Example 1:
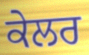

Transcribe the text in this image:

ਕੇਲਰ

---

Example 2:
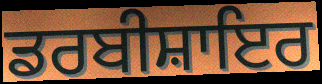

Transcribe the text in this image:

ਡਰਬੀਸ਼ਾਇਰ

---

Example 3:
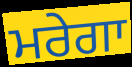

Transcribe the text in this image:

ਮਰੇਗਾ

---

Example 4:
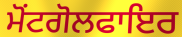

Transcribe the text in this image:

ਮੋਂਟਗੋਲਫਾਇਰ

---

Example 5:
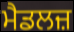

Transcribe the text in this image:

ਮੈਡਲਜ਼